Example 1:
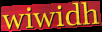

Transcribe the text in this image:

wiwidh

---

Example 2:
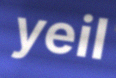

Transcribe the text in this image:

yeil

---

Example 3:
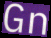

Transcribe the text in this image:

Gn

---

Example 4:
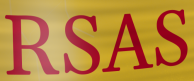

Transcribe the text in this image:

RSAS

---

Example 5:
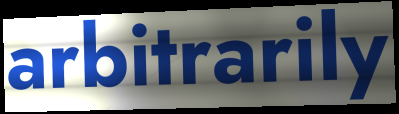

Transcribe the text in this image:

arbitrarily